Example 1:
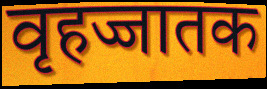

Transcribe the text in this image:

वृहज्जातक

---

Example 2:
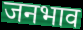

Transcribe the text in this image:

जनभाव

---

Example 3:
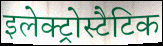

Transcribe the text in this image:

इलेक्ट्रोस्टैटिक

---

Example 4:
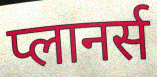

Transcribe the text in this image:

प्लानर्स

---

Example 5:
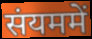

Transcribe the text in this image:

संयममें